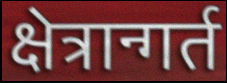
क्षेत्रान्गर्त